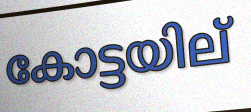
കോട്ടയില്